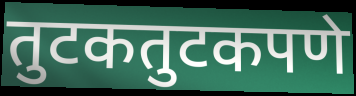
तुटकतुटकपणे